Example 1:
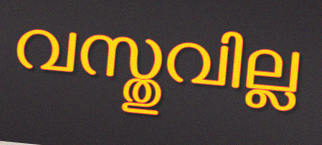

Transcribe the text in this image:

വസ്തുവില്ല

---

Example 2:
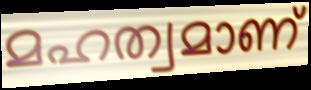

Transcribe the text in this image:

മഹത്വമാണ്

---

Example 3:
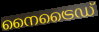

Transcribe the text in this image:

നൈട്രൈഡ്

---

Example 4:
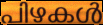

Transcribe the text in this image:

പിഴകൾ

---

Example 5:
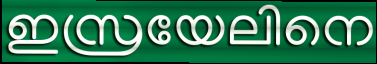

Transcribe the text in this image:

ഇസ്രയേലിനെ